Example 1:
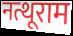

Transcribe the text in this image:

नत्थूराम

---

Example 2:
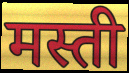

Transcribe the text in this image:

मस्ती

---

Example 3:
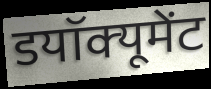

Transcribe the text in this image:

डयॉक्‍यूमेंट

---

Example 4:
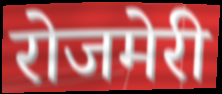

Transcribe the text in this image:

रोजमेरी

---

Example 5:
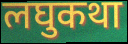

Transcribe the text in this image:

लघुकथा